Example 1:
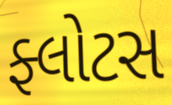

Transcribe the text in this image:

ફ્લોટસ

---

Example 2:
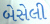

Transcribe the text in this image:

બેસેલી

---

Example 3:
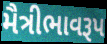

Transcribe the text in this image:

મૈત્રીભાવરૂપ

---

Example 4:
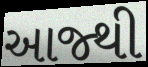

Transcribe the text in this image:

આજ્થી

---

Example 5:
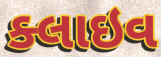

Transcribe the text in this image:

ક્લાઇવ